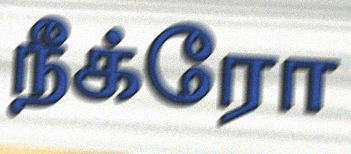
நீக்ரோ